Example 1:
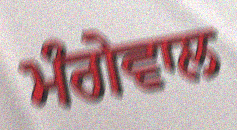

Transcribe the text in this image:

ਮੰਗੇਵਾਲ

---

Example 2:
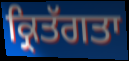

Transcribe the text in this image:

ਕ੍ਰਿਤੱਗਤਾ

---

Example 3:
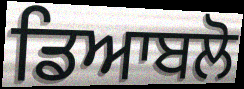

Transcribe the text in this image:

ਡਿਆਬਲੋ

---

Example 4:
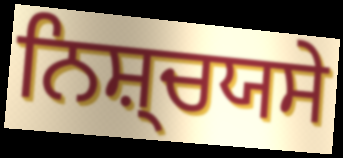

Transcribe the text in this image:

ਨਿਸ਼੍ਚਯਸੇ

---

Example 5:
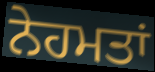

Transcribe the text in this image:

ਨੇਹਮਤਾਂ